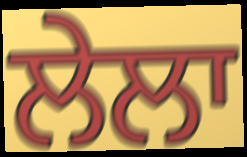
ਲੇਲਾ